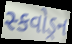
સ્કવોડ્રન